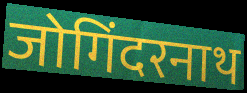
जोगिंदरनाथ